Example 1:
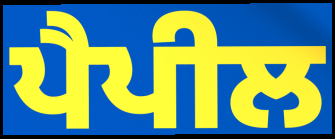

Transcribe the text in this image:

ਪੈਪੀਲ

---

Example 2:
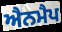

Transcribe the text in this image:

ਐਨਮੈਪ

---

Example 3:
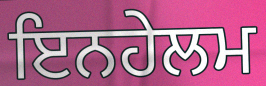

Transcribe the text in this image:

ਇਨਹੇਲਮ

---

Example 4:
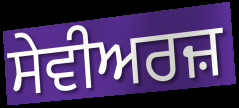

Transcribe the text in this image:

ਸੇਵੀਅਰਜ਼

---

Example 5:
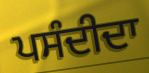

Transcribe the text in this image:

ਪਸੰਦੀਦਾ